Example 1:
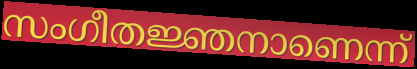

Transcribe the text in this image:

സംഗീതജ്ഞനാണെന്ന്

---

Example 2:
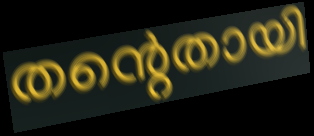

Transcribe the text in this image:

തന്റെതായി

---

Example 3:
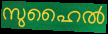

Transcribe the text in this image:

സുഹൈൽ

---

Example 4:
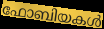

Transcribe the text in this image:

ഫോബിയകൾ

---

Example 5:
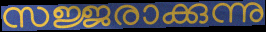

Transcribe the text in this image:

സജ്ജരാക്കുന്നു